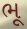
ભૂ